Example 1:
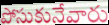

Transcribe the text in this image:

పోసుకునేవారు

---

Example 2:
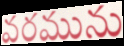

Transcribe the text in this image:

వరమును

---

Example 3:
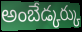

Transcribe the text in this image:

అంబేడ్కర్కు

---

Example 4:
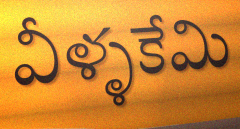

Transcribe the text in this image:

వీళ్ళకేమి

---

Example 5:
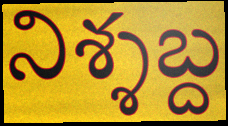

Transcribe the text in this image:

నిశ్శబ్ద